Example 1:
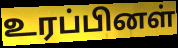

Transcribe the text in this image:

உரப்பினள்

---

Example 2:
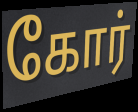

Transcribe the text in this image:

கோர்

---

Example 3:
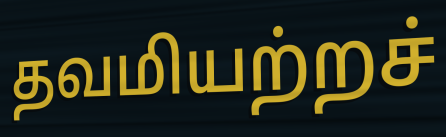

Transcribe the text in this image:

தவமியற்றச்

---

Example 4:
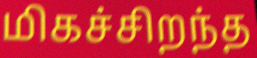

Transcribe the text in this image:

மிகச்சிறந்த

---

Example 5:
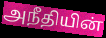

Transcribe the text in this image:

அநீதியின்